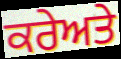
ਕਰੇਅਤੇ